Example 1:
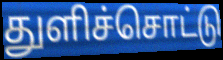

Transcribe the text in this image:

துளிச்சொட்டு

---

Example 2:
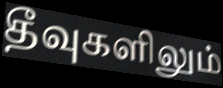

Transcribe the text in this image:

தீவுகளிலும்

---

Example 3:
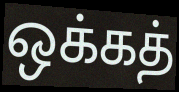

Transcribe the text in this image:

ஒக்கத்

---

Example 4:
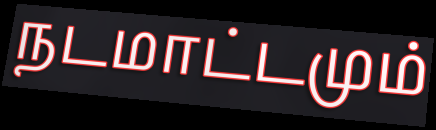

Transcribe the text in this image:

நடமாட்டமும்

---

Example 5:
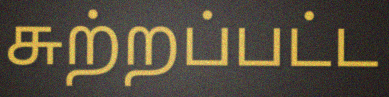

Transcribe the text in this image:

சுற்றப்பட்ட